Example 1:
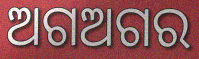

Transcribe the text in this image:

ଅଗଅଗର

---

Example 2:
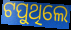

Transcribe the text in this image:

ଟପୁଥିଲେ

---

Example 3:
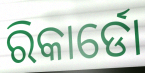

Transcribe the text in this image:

ରିକାର୍ଡୋ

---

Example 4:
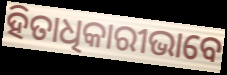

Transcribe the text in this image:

ହିତାଧିକାରୀଭାବେ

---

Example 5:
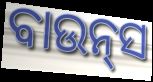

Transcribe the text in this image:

ବାଉନ୍‍ସ